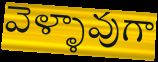
వెళ్ళావుగా